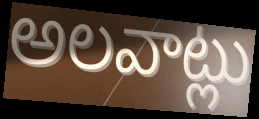
అలవాట్లు